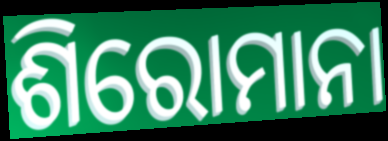
ଶିରୋମାନା